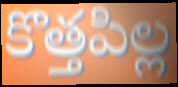
కొత్తపిల్ల